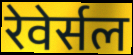
रेवेर्सल